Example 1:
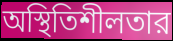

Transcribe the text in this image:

অস্থিতিশীলতার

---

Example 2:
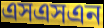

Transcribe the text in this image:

এসএসএন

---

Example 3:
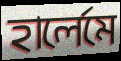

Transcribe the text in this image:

হার্লেমে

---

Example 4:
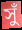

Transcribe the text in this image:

সুঁ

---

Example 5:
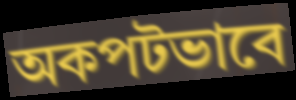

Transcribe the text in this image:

অকপটভাবে